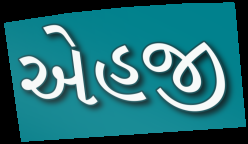
એહજી